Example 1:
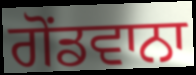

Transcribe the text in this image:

ਗੋਂਡਵਾਨਾ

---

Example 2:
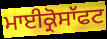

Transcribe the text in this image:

ਮਾਈਕ੍ਰੋਸਾੱਫਟ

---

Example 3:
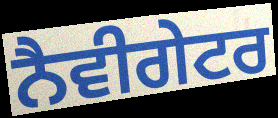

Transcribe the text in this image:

ਨੈਵੀਗੇਟਰ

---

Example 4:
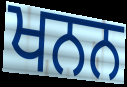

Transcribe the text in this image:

ਖਨਨ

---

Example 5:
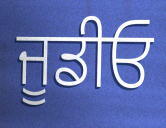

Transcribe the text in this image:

ਜੂਡੀਓ